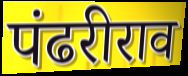
पंढरीराव